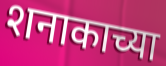
शनाकाच्या